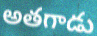
అతగాడు